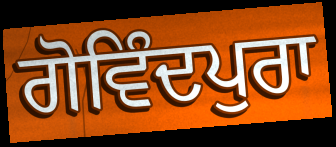
ਗੋਵਿੰਦਪੁਰਾ